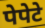
पेपेटे